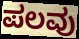
ಪಲವು